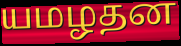
யமழதன